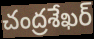
చంద్రశేఖర్